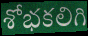
శోభకలిగి